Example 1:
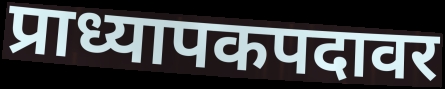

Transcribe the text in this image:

प्राध्यापकपदावर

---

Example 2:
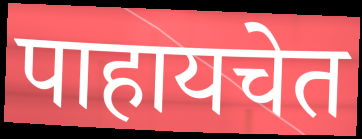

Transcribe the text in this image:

पाहायचेत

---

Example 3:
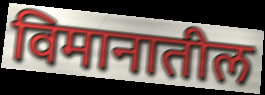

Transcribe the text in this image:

विमानातील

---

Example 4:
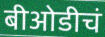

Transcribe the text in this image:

बीओडीचं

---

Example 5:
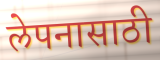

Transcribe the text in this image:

लेपनासाठी